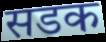
सडक